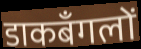
डाकबँगलों